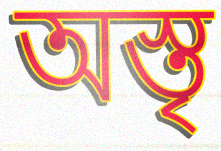
অস্তৃ